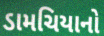
ડામચિયાનો